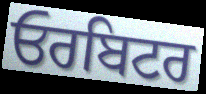
ਓਰਬਿਟਰ